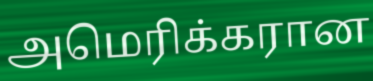
அமெரிக்கரான